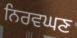
ਨਿਰਵਘਣ